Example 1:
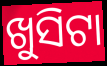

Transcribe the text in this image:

ଖୁସିଟା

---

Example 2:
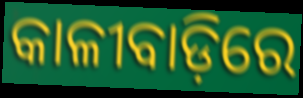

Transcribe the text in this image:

କାଳୀବାଡ଼ିରେ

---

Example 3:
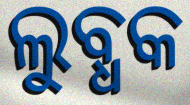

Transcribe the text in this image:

ଲୁବ୍ଧକ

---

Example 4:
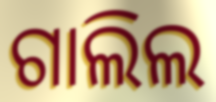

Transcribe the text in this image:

ଗାଲିଲ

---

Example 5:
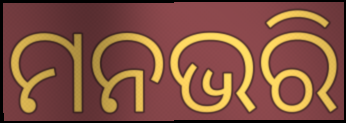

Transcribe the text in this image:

ମନଭରି